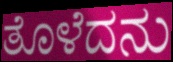
ತೊಳೆದನು